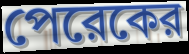
পেরেকের